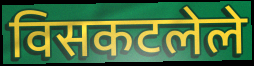
विसकटलेले